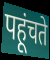
पहूंचते